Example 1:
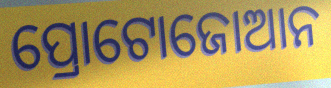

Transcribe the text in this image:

ପ୍ରୋଟୋଜୋଆନ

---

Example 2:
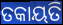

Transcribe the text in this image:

ତକାୟତି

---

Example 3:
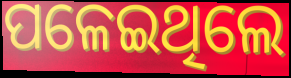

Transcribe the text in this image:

ପଳେଇଥିଲେ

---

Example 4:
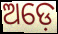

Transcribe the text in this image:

ଅଡ଼େ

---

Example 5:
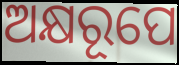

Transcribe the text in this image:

ଅକ୍ଷରୂପେ